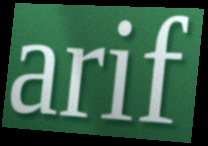
arif